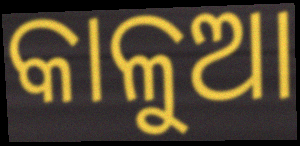
କାଳୁଆ